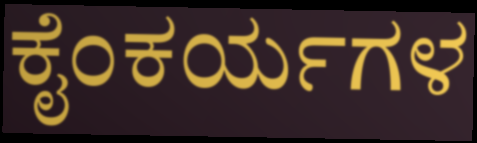
ಕೈಂಕರ್ಯಗಳ